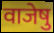
वाजेषु